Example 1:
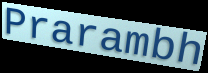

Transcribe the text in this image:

Prarambh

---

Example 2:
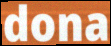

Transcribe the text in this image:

dona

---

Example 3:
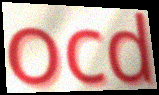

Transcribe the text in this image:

ocd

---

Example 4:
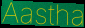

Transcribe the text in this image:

Aastha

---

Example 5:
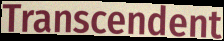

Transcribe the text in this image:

Transcendent